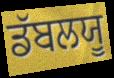
ਡੱਬਲਯੂ